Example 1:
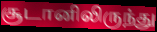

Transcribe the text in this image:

சூடானிலிருந்து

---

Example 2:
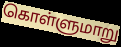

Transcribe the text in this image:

கொள்ளுமாறு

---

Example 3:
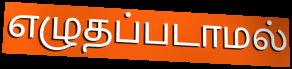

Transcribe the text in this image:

எழுதப்படாமல்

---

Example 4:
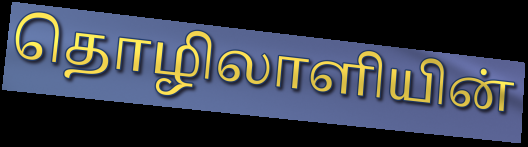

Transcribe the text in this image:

தொழிலாளியின்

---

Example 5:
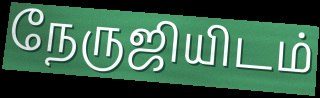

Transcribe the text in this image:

நேருஜியிடம்